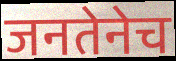
जनतेनेच